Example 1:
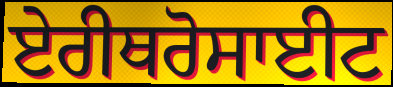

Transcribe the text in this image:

ਏਰੀਥਰੋਸਾਈਟ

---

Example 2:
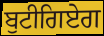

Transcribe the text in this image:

ਬੁਟੀਗਿਏਗ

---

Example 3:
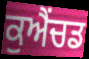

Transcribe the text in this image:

ਕੁਐਂਚਡ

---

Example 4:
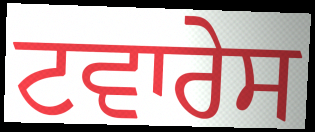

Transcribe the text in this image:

ਟਵਾਰੇਸ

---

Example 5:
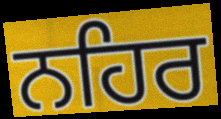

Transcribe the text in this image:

ਨਹਿਰ